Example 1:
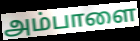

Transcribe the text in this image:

அம்பாளை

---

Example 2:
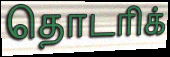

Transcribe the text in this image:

தொடரிக்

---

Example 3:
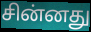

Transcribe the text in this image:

சின்னது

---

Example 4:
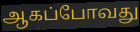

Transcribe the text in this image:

ஆகப்போவது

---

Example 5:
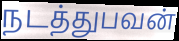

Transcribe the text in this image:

நடத்துபவன்